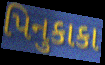
પિનુકાકા